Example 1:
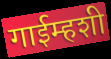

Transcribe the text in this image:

गाईम्हशी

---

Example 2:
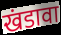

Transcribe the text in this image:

खंडावा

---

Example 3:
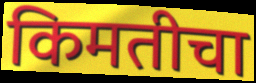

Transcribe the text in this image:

किमतीचा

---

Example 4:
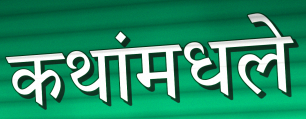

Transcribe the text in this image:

कथांमधले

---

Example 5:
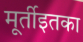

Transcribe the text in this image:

मूर्तीइतका